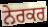
ਨੇਰਕਰ